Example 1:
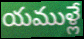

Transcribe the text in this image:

యముళ్లే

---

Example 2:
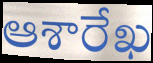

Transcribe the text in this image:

ఆశారేఖ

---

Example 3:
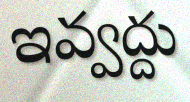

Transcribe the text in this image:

ఇవ్వద్దు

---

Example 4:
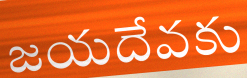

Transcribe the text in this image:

జయదేవకు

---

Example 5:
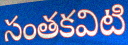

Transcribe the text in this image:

సంతకవిటి